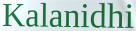
Kalanidhi